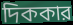
দিককার